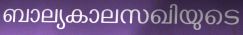
ബാല്യകാലസഖിയുടെ